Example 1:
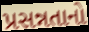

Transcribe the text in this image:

પ્રસન્નતાનો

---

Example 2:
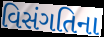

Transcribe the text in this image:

વિસંગતિના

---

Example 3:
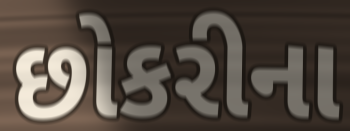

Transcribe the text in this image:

છોકરીના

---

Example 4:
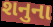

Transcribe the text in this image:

શનુના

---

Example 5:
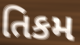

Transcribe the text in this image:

તિકમ